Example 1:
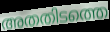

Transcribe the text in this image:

അതതിടത്തെ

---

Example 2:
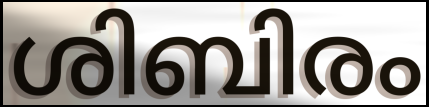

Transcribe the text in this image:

ശിബിരം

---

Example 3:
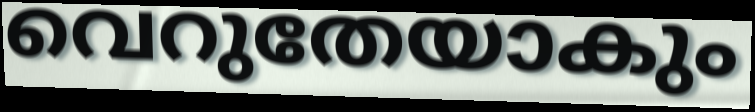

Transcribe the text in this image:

വെറുതേയാകും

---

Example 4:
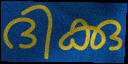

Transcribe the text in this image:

ദിക്കു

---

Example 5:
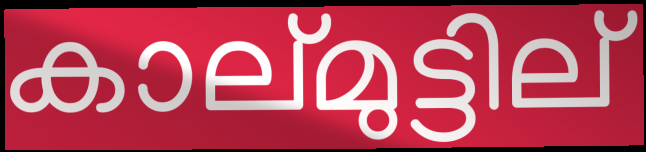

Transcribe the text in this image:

കാല്മുട്ടില്